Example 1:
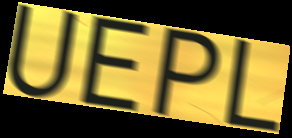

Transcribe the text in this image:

UEPL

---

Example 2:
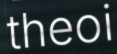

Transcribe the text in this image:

theoi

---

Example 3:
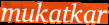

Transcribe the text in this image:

mukatkar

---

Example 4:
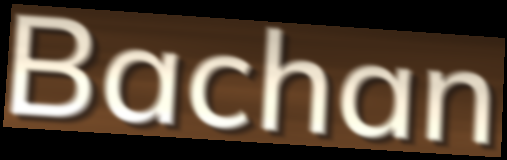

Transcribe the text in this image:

Bachan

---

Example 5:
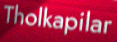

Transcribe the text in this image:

Tholkapilar